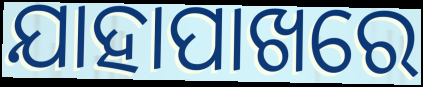
ଯାହାପାଖରେ